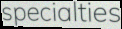
specialties